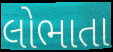
લોભાતા